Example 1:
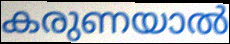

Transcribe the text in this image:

കരുണയാൽ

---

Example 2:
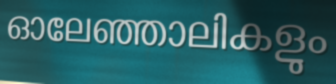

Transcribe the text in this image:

ഓലേഞ്ഞാലികളും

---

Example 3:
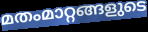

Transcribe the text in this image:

മതംമാറ്റങ്ങളുടെ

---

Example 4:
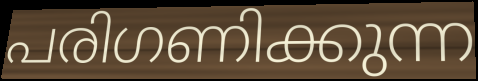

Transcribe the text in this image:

പരിഗണിക്കുന്ന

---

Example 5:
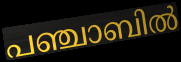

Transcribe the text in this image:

പഞ്ചാബിൽ